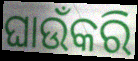
ଘାଉଁକରି